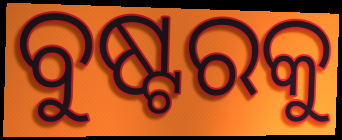
ବୁଷ୍ଟରକୁ